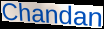
Chandan